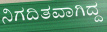
ನಿಗದಿತವಾಗಿದ್ದ